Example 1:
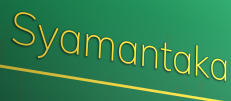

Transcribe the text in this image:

Syamantaka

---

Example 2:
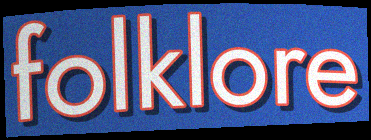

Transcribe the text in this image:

folklore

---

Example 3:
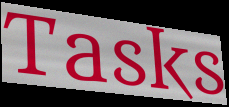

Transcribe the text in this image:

Tasks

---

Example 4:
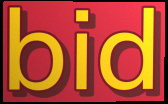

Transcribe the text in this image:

bid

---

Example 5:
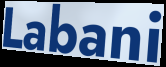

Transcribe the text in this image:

Labani